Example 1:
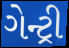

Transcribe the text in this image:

ગેન્ટ્રી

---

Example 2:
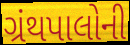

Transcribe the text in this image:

ગ્રંથપાલોની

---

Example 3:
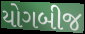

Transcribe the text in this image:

યોગબીજ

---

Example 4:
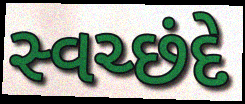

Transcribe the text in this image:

સ્વચ્છંદે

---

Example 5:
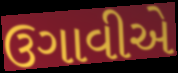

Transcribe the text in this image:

ઉગાવીએ